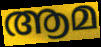
ആമ